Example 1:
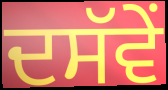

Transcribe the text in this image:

ਦਸੱਵੇਂ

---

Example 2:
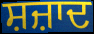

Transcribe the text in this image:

ਸ਼ਜ਼ਾਦ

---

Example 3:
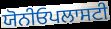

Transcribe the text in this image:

ਯੋਨੀਓਪਲਾਸਟੀ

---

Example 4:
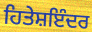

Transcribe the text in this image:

ਹਿਤੇਸ਼ਇੰਦਰ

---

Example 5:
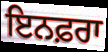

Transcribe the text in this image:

ਇਨਫ਼ਰਾ